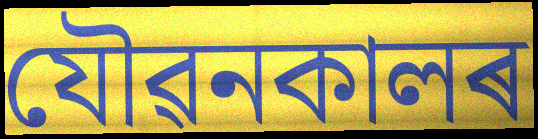
যৌৱনকালৰ